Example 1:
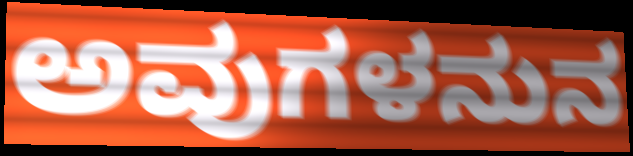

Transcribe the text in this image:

ಅವುಗಳನುನ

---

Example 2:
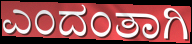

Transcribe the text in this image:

ಎಂದಂತಾಗಿ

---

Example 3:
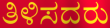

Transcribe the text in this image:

ತಿಳಿಸದರು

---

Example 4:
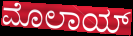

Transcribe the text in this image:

ಮೊಲಾಯ್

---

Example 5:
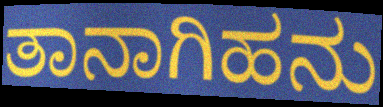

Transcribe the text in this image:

ತಾನಾಗಿಹನು